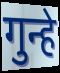
गुन्हे